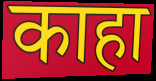
काहा